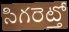
సిగరెట్తో